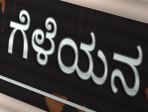
ಗೆಳೆಯನ